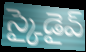
స్కైడైవ్